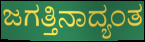
ಜಗತ್ತಿನಾದ್ಯಂತ